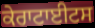
ਕੇਰਾਟਾਈਟਸ